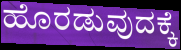
ಹೊರಡುವುದಕ್ಕೆ